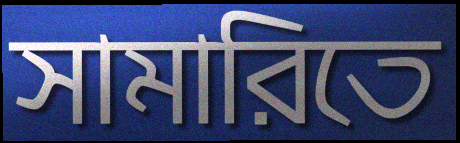
সামারিতে